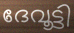
ദേവൂട്ടി